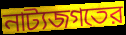
নাট্যজগতের